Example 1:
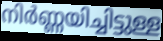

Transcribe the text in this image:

നിർണ്ണയിച്ചിട്ടുള്ള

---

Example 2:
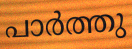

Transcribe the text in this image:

പാർത്തു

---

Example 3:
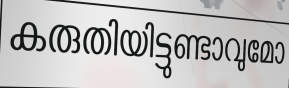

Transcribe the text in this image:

കരുതിയിട്ടുണ്ടാവുമോ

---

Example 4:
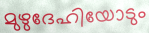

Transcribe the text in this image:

മുഴുദേഹിയോടും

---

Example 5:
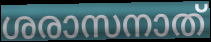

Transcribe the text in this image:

ശരാസനാത്